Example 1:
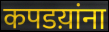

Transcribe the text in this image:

कपडय़ांना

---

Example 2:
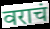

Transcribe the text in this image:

वराचं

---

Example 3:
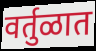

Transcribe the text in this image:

वर्तुळात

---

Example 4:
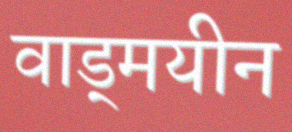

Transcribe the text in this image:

वाड्‌मयीन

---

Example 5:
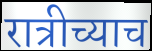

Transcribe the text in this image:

रात्रीच्याच